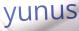
yunus